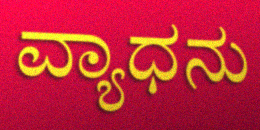
ವ್ಯಾಧನು